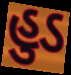
હુડ